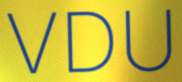
VDU